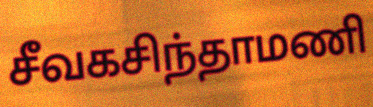
சீவகசிந்தாமணி